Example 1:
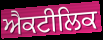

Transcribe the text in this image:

ਐਕਟੀਲਿਕ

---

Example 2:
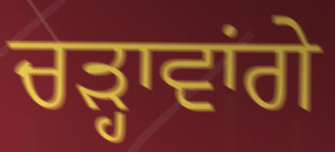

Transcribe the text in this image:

ਚੜ੍ਹਾਵਾਂਗੇ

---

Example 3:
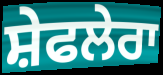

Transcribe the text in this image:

ਸ਼ੇਫਲੇਰਾ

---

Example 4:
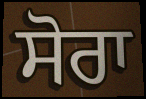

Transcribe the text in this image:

ਸੋਰਾ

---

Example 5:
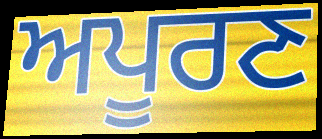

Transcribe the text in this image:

ਅਪੂਰਣ